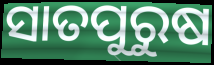
ସାତପୁରୁଷ